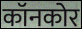
कॉनकोर